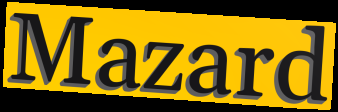
Mazard